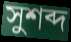
সুশব্দ